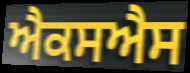
ਐਕਸਐਸ